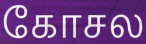
கோசல